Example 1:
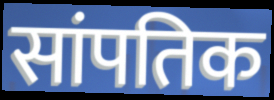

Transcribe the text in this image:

सांपतिक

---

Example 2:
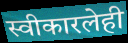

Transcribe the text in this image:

स्वीकारलेही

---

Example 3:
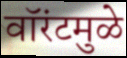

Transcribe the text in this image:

वॉरंटमुळे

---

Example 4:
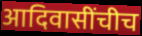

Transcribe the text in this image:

आदिवासींचीच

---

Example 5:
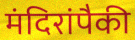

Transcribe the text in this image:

मंदिरांपैकी